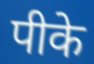
पीके